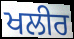
ਖਲੀਰ